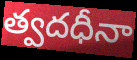
త్వదధీనా